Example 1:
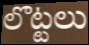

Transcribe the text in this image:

లొట్టలు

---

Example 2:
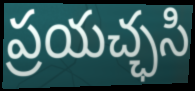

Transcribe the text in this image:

ప్రయచ్ఛసి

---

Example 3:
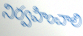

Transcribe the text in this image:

నిర్వహించాలి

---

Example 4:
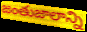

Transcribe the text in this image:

జంతుజాలాన్ని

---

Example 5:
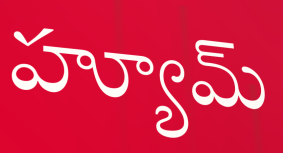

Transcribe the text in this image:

హ్యూమ్